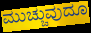
ಮುಚ್ಚುವುದೂ